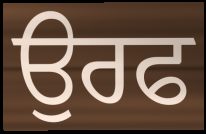
ਉਰਫ